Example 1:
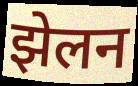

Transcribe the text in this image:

झेलन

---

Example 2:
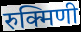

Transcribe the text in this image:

रुक्मिणी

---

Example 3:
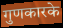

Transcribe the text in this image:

गुणकारके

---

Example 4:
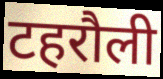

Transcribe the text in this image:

टहरौली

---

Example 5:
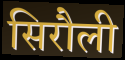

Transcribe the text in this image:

सिरौली